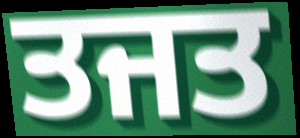
ਤਜਤ